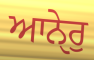
ਆਨੇੑਰੁ